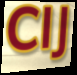
CIJ